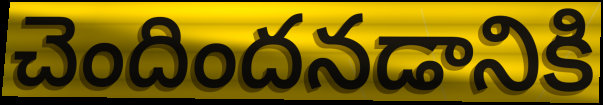
చెందిందనడానికి